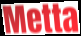
Metta